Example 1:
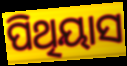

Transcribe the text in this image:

ପିଥିୟାସ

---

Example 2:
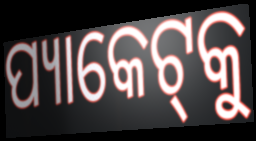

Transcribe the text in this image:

ପ୍ୟାକେଟ୍‌କୁ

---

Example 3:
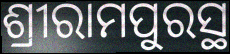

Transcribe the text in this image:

ଶ୍ରୀରାମପୁରସ୍ଥ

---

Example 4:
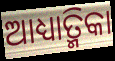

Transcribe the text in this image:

ଆଧ୍ୟାତ୍ମିକା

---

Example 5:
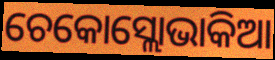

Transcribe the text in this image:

ଚେକୋସ୍ଲୋଭାକିଆ